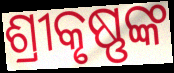
ଶ୍ରୀକୃଷ୍ଣଙ୍କ